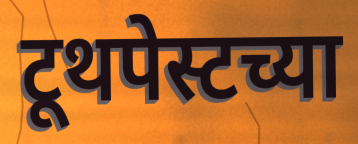
टूथपेस्टच्या